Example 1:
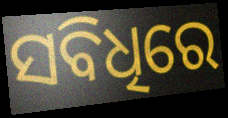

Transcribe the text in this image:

ସବିଧିରେ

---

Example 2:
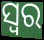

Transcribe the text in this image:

ସ୍ବର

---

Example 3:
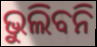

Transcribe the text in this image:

ଭୁଲିବନି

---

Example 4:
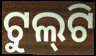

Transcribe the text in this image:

ଟୁଲ୍‌ଟି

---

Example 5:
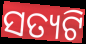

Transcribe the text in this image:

ସତ୍ୟଟି